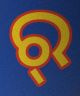
ର୍